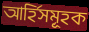
আৰ্হিসমূহক